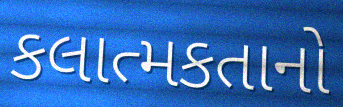
કલાત્મકતાનો